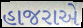
હાજરાએ